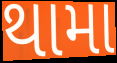
થામા